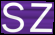
sz